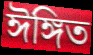
ঈঙ্গিত